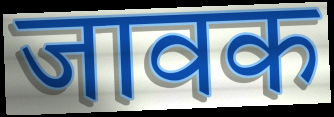
जावक